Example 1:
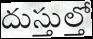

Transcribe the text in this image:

దుస్తుల్తో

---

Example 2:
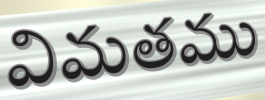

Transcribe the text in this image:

విమతము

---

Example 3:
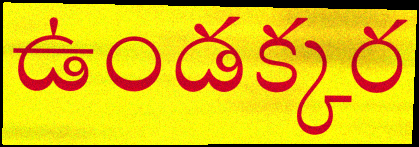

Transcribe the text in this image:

ఉండక్కర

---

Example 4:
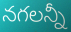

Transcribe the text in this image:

నగలన్నీ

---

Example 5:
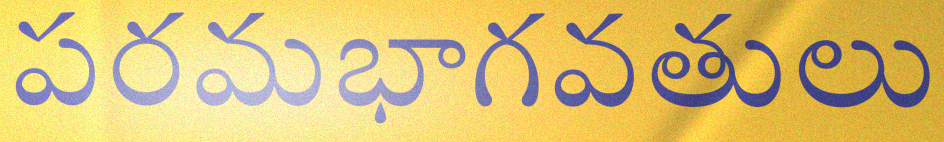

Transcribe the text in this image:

పరమభాగవతులు